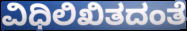
ವಿಧಿಲಿಖಿತದಂತೆ